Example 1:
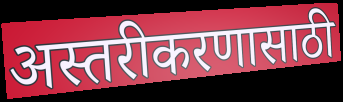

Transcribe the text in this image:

अस्तरीकरणासाठी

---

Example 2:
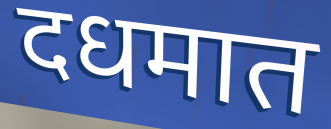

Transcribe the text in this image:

दधमात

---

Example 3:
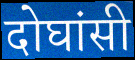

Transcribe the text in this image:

दोघांसी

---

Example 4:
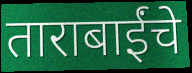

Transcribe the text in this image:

ताराबाईंचे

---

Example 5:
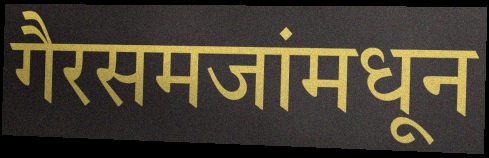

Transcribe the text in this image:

गैरसमजांमधून